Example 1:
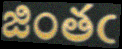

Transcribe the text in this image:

జింతఁ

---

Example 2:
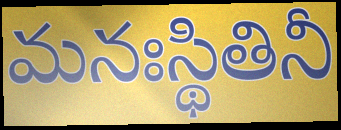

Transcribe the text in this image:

మనఃస్థితినీ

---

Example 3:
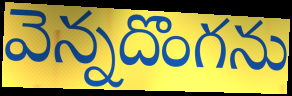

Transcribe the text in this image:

వెన్నదొంగను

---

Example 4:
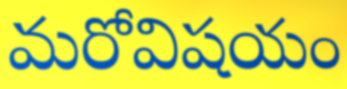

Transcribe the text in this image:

మరోవిషయం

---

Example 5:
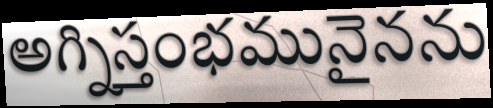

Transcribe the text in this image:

అగ్నిస్తంభమునైనను